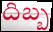
దిబ్బ